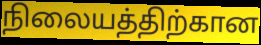
நிலையத்திற்கான